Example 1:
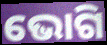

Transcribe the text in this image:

ଭୋଗି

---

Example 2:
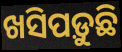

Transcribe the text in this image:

ଖସିପଡ଼ୁଛି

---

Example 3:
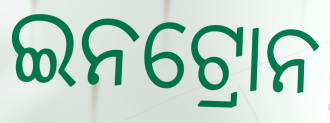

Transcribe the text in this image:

ଇନଟ୍ରୋନ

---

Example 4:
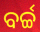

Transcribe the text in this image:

ବର୍ଚ୍ଚ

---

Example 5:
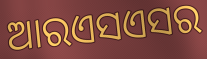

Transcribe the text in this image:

ଆରଏସଏସର